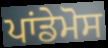
ਪਾਂਡੇਮੋਸ